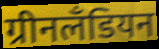
ग्रीनलॅंडियन